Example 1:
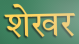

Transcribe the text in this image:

शेखर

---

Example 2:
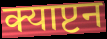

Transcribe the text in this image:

क्याप्टन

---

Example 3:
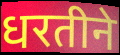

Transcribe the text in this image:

धरतीने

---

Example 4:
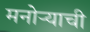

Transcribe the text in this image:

मनोऱ्याची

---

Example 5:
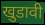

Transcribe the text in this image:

खुडावी